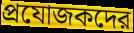
প্রযোজকদের